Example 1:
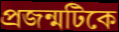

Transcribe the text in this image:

প্রজন্মটিকে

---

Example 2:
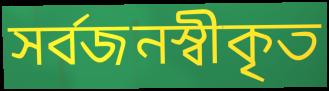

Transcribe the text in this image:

সর্বজনস্বীকৃত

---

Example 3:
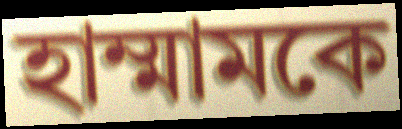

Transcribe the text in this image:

হাম্মামকে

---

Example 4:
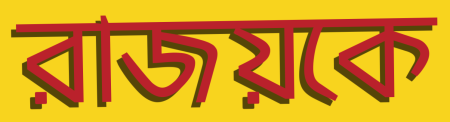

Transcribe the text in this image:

রাজয়কে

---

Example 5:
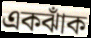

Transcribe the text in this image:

একঝাঁক